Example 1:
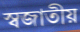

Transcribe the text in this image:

স্বজাতীয়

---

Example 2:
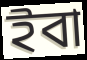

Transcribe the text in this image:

ইবা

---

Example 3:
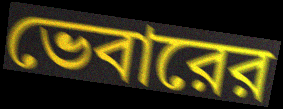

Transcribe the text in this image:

ভেবারের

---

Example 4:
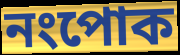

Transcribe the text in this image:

নংপোক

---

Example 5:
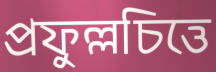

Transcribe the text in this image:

প্রফুল্লচিত্তে